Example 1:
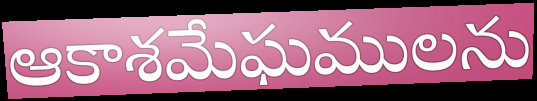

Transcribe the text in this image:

ఆకాశమేఘములను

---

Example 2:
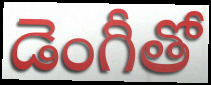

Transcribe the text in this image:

డెంగీతో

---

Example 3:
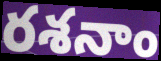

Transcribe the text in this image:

రశనాం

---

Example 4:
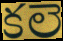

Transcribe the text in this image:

కలె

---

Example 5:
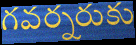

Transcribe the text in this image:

గవర్నరుకు